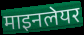
माइनलेयर